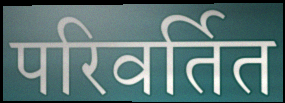
परिवर्तित